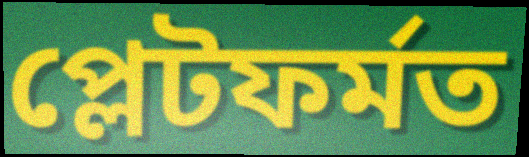
প্লেটফৰ্মত